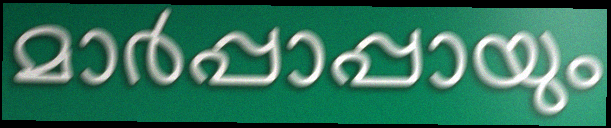
മാർപ്പാപ്പായും